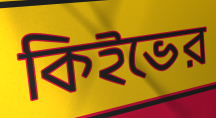
কিইভের